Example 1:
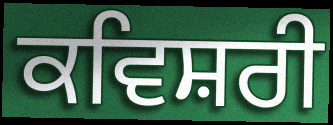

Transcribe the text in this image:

ਕਵਿਸ਼ਰੀ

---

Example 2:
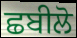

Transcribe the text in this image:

ਛਬੀਲੋ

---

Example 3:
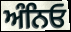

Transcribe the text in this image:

ਅੰਨਿਓ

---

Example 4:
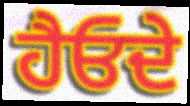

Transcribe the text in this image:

ਹੈਓਦੇ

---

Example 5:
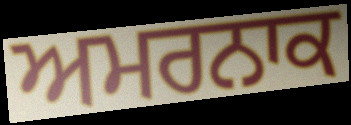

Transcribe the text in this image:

ਅਮਰਨਾਕ